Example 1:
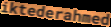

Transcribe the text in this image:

iktederahmed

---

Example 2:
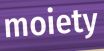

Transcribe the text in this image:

moiety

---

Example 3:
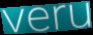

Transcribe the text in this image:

veru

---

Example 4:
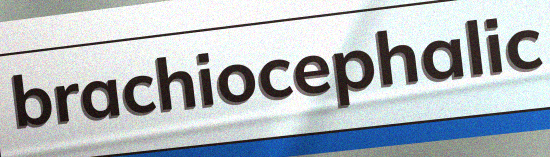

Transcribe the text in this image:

brachiocephalic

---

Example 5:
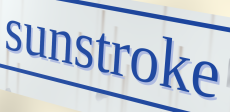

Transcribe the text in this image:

sunstroke